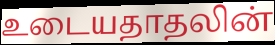
உடையதாதலின்